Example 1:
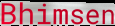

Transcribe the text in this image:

Bhimsen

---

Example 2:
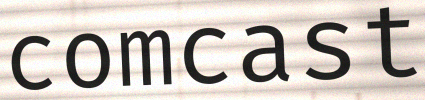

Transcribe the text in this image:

comcast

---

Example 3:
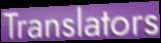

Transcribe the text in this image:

Translators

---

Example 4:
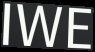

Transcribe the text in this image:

IWE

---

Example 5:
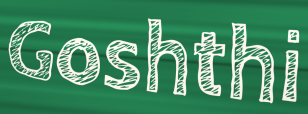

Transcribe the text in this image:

Goshthi